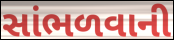
સાંભળવાની